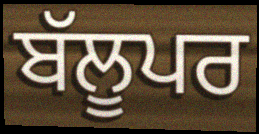
ਬੱਲੂਪਰ